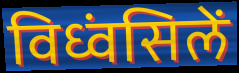
विध्वंसिलें